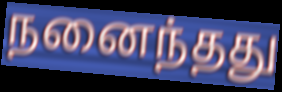
நனைந்தது